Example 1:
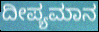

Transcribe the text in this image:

ದೀಪ್ಯಮಾನ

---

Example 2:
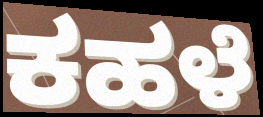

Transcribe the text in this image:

ಕಹಳೆ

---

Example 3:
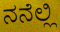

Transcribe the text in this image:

ನನೆಲ್ಲಿ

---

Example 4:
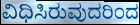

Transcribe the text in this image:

ವಿಧಿಸಿರುವುದರಿಂದ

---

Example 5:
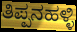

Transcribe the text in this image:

ತಿಪ್ಪನಹಳ್ಳಿ